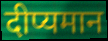
दीप्यमान